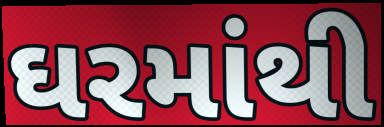
ઘરમાંથી